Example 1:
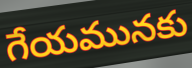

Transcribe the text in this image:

గేయమునకు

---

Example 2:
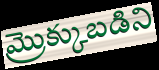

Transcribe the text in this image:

మ్రొక్కుబడిని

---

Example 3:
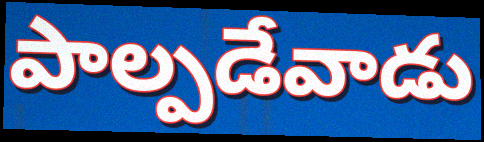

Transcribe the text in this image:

పాల్పడేవాడు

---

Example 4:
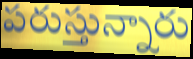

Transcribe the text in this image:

పరుస్తున్నారు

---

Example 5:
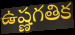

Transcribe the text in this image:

ఉష్ణగతిక